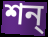
শন্